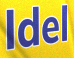
Idel